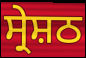
ਸ੍ਰੇਸ਼ਠ